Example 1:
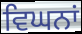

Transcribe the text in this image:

ਵਿਘਨਾਂ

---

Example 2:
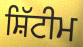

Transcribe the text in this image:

ਸ਼ਿੱਟੀਮ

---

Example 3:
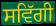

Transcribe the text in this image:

ਸਵਿੱਗੀ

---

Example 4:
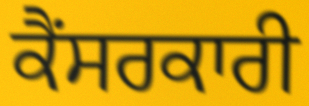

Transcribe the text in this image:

ਕੈਂਸਰਕਾਰੀ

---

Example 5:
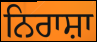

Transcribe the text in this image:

ਨਿਰਾਸ਼ਾ